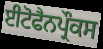
ਈਟੋਫੈਨਪ੍ਰੌਕਸ